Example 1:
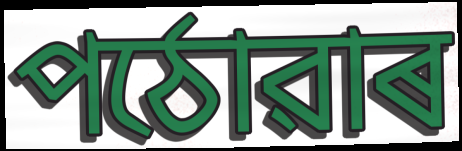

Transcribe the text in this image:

পঠোৱাৰ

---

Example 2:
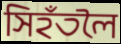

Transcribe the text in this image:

সিহঁতলৈ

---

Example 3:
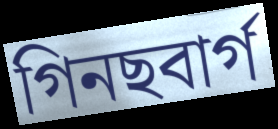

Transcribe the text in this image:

গিনছবাৰ্গ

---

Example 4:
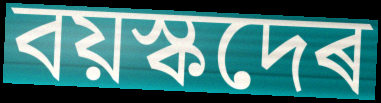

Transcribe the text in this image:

বয়স্কদেৰ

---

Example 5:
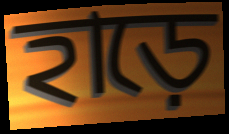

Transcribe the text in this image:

হাড়ে